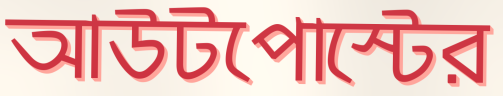
আউটপোস্টের